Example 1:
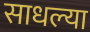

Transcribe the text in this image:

साधल्या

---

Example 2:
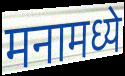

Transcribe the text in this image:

मनामध्ये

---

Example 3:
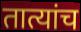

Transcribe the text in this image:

तात्यांच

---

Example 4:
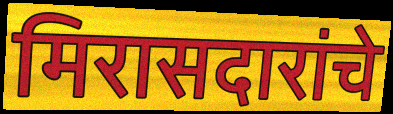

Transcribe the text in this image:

मिरासदारांचे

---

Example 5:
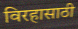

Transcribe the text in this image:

विरहासाठी